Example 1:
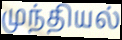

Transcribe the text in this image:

முந்தியல்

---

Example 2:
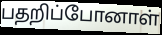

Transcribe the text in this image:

பதறிப்போனாள்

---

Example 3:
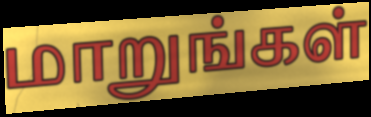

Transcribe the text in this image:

மாறுங்கள்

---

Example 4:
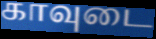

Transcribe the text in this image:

காவுடை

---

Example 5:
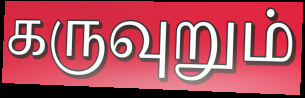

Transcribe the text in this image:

கருவுறும்